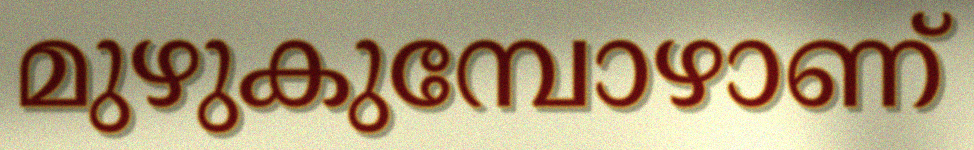
മുഴുകുമ്പോഴാണ്